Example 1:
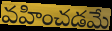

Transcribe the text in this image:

వహించడమే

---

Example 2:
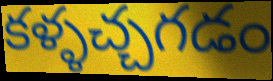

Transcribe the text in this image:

కళ్ళచ్చగడం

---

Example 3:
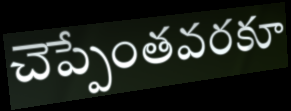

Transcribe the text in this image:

చెప్పేంతవరకూ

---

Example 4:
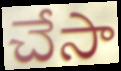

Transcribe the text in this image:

చేసా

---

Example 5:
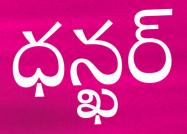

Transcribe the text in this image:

ధన్ఖర్